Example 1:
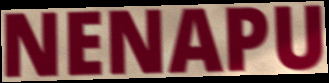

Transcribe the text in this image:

NENAPU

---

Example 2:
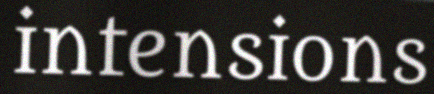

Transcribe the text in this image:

intensions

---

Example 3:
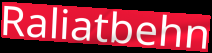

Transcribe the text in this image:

Raliatbehn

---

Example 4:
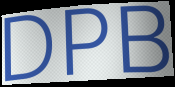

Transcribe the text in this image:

DPB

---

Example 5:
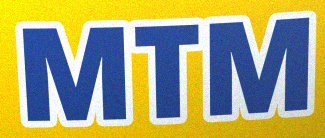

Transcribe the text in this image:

MTM